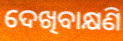
ଦେଖିବାକ୍ଷଣି